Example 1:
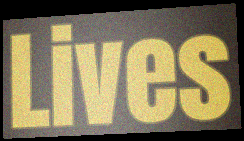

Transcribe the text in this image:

Lives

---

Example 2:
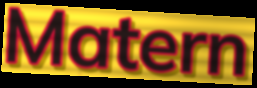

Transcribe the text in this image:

Matern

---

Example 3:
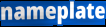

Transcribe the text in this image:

nameplate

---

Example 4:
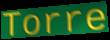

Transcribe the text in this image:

Torre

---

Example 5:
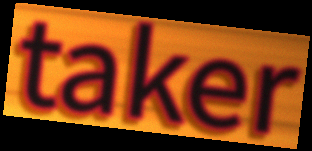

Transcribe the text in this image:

taker